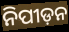
ନିପୀଡ଼ନ